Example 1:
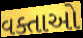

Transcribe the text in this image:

વક્તાઓ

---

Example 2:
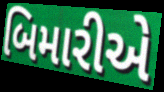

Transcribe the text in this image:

બિમારીએ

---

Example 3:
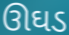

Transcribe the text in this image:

ઊઘડ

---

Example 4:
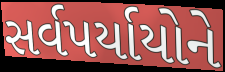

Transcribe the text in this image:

સર્વપર્યાયોને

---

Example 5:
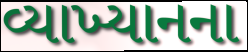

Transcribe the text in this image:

વ્યાખ્યાનના